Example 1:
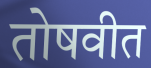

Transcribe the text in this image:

तोषवीत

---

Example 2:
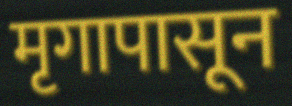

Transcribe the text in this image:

मृगापासून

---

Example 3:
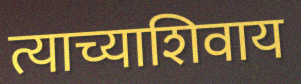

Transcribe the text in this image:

त्याच्याशिवाय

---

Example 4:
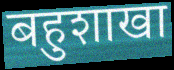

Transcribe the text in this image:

बहुशाखा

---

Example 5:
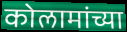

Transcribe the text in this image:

कोलामांच्या